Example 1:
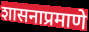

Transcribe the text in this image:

शासनाप्रमाणे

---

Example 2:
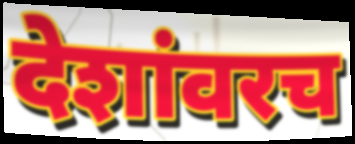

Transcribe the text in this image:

देशांवरच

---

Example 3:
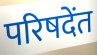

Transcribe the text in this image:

परिषदेंत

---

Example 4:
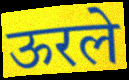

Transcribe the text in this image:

ऊरले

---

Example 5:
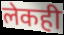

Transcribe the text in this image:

लेकही